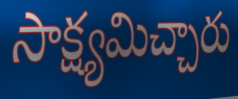
సాక్ష్యమిచ్చారు